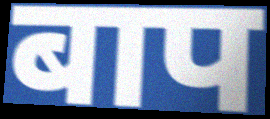
बाप